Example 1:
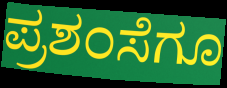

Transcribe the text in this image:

ಪ್ರಶಂಸೆಗೂ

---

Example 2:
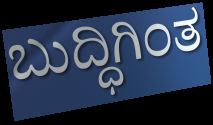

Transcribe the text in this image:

ಬುದ್ಧಿಗಿಂತ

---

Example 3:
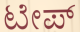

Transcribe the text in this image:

ಟೇಪ್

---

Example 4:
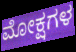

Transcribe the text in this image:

ಮೋಕ್ಷಗಳ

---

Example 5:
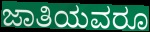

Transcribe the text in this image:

ಜಾತಿಯವರೂ